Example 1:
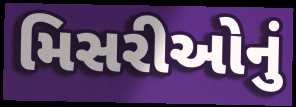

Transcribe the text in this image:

મિસરીઓનું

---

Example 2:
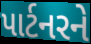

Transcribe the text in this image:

પાર્ટનરને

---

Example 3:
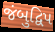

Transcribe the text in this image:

જંબુદ્વિપ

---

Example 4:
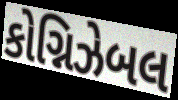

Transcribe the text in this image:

કોગ્નિઝેબલ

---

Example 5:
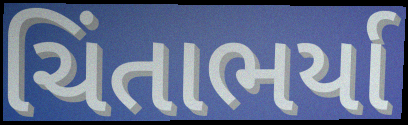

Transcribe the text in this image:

ચિંતાભર્યા